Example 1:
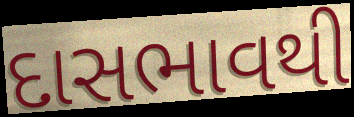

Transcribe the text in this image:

દાસભાવથી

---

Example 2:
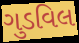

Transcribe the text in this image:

ગુડવિલ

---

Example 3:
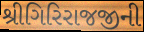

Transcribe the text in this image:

શ્રીગિરિરાજજીની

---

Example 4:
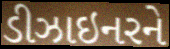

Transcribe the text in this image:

ડીઝાઇનરને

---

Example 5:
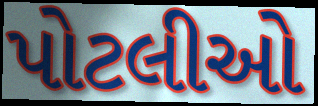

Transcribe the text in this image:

પોટલીઓ